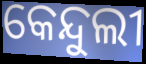
କେନ୍ଦୁଲୀ